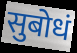
सुबोधं